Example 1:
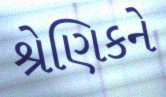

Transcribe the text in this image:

શ્રેણિકને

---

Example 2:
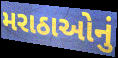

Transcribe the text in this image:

મરાઠાઓનું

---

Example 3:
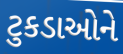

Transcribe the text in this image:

ટુકડાઓને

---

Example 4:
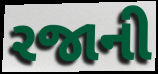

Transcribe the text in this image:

રજાની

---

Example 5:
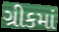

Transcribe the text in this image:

ગ્રીકમાં